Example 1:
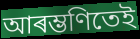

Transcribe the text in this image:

আৰম্ভণিতেই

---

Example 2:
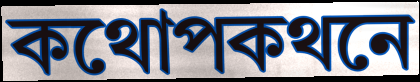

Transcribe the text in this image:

কথোপকথনে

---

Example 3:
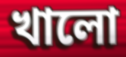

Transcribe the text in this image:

খালো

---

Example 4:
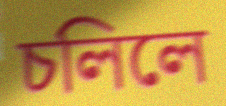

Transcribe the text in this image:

চলিলে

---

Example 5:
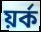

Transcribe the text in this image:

য়ৰ্ক